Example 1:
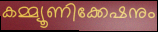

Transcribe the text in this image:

കമ്മ്യൂണിക്കേഷനും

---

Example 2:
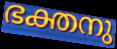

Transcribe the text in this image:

ഭക്തനു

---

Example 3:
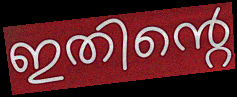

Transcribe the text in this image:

ഇതിന്റെ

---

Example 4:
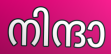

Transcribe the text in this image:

നിന്ദാ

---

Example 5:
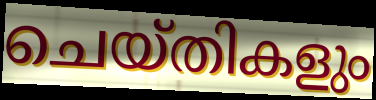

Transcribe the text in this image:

ചെയ്തികളും